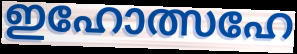
ഇഹോത്സഹേ